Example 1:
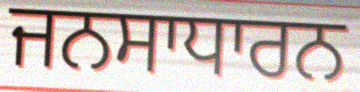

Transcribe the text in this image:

ਜਨਸਾਧਾਰਨ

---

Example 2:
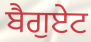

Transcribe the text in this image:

ਬੈਗੁਏਟ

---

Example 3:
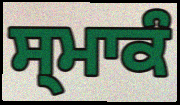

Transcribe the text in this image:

ਸ੍ਮਾਕੰ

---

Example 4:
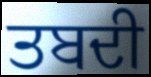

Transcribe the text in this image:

ਤਬਦੀ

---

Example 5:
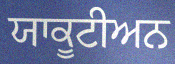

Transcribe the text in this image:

ਯਾਕੂਟੀਅਨ